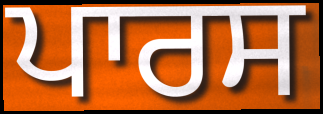
ਪਾਰਸ